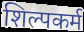
शिल्पकर्म